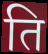
ति